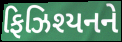
ફિઝિશ્યનને